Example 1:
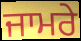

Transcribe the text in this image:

ਜਾਮਰੇ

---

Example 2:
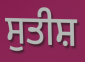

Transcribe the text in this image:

ਸੁਤੀਸ਼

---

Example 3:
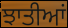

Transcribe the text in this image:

ਝਾਤੀਆਂ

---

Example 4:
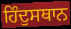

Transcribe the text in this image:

ਹਿੰਦੁਸਥਾਨ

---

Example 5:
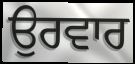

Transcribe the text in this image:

ਉਰਵਾਰ